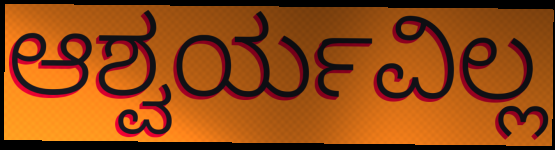
ಆಶ್ವರ್ಯವಿಲ್ಲ